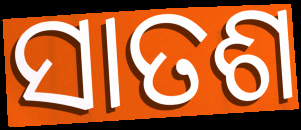
ସାତଶ